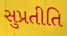
સુપ્રતીતિ